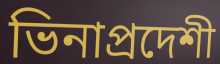
ভিনাপ্রদেশী